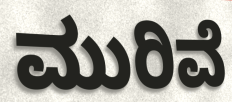
ಮುರಿವೆ